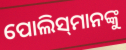
ପୋଲିସ୍‌ମାନଙ୍କୁ